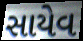
સાયેવ